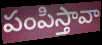
పంపిస్తావా